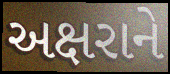
અક્ષરાને